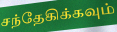
சந்தேகிக்கவும்